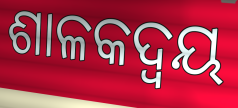
ଶାଳକଦ୍ୱୟ